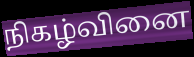
நிகழ்வினை